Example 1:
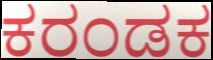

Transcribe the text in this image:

ಕರಂಡಕ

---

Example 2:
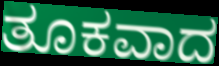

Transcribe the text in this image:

ತೂಕವಾದ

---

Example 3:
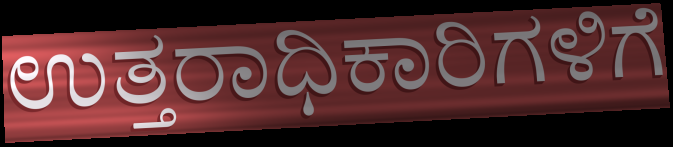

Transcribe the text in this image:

ಉತ್ತರಾಧಿಕಾರಿಗಳಿಗೆ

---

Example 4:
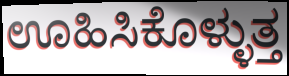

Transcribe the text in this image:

ಊಹಿಸಿಕೊಳ್ಳುತ್ತ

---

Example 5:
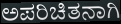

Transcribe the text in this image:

ಅಪರಿಚಿತನಾಗಿ